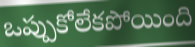
ఒప్పుకోలేకపోయింది